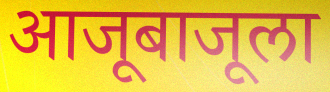
आजूबाजूला